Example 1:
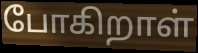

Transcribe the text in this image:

போகிறாள்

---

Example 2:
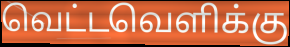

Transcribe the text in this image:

வெட்டவெளிக்கு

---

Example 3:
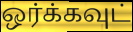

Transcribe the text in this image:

ஒர்க்கவுட்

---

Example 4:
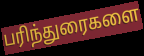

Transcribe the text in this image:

பரிந்துரைகளை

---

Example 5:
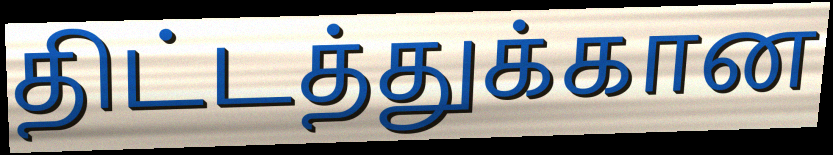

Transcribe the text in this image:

திட்டத்துக்கான